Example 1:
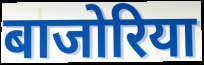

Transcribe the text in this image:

बाजोरिया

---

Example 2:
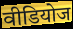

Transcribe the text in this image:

वीडियोज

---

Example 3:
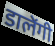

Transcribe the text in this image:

डालेंगी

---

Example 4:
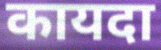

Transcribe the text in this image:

कायदा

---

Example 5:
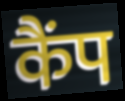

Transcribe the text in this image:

कैंप